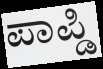
ಪಾಪ್ಡಿ